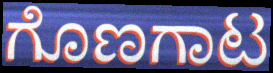
ಗೊಣಗಾಟ